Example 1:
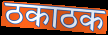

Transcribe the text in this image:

ठकाठक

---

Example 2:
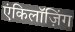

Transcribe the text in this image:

एंकिलॉज़िंग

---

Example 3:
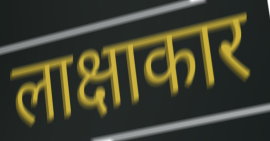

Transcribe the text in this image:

लाक्षाकार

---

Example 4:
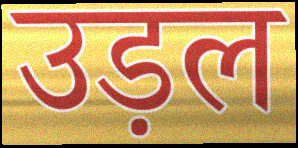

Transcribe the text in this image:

उड़ल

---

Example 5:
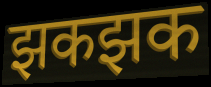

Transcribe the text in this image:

झकझक